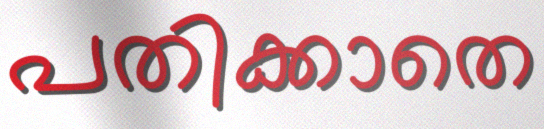
പതിക്കാതെ